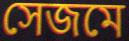
সেজমে